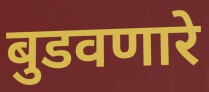
बुडवणारे